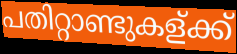
പതിറ്റാണ്ടുകള്ക്ക്